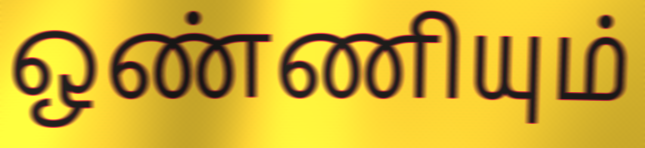
ஒண்ணியும்